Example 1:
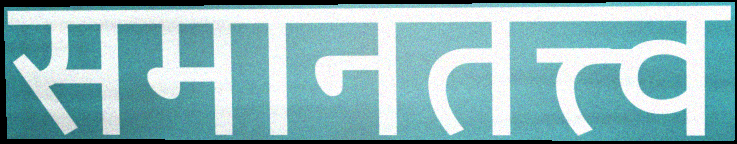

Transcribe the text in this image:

समानतत्त्व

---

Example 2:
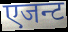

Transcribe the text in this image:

एजन्ट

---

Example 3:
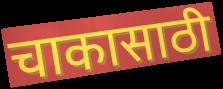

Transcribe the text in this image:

चाकासाठी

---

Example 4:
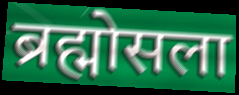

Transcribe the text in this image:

ब्रह्मोसला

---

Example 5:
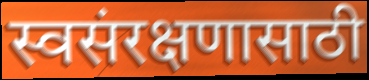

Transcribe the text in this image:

स्वसंरक्षणासाठी